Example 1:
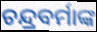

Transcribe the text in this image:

ଚନ୍ଦ୍ରବର୍ମାଙ୍କ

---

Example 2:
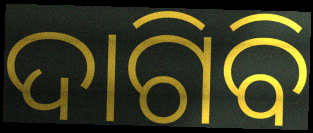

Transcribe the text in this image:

ଦାଗିବି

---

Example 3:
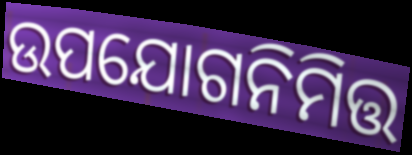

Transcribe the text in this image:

ଉପଯୋଗନିମିତ୍ତ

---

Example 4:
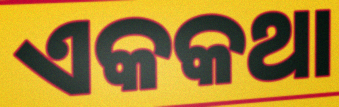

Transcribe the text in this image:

ଏକକଥା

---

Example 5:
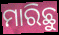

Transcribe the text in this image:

ମାରିଛୁ